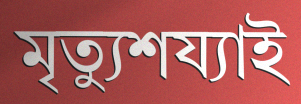
মৃত্যুশয্যাই